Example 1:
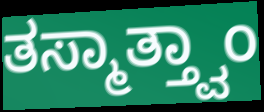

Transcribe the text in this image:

ತಸ್ಮಾತ್ತ್ವಾಂ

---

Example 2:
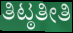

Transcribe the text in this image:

ತಿಟ್ಠತೀತಿ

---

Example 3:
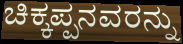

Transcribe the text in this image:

ಚಿಕ್ಕಪ್ಪನವರನ್ನು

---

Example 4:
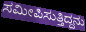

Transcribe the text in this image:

ಸಮೀಪಿಸುತ್ತಿದ್ದನು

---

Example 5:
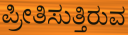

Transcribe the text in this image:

ಪ್ರೀತಿಸುತ್ತಿರುವ